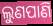
ଲୁଣପାଣି